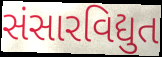
સંસારવિદ્યુત